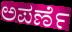
ಅಪರ್ಣೆ